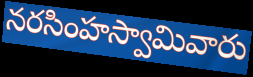
నరసింహస్వామివారు